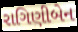
રાગિણીબેન